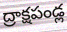
ద్రాక్షపండ్ల